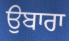
ਉਬਾਰਾ